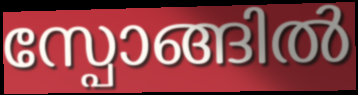
സ്പോങ്ങിൽ